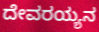
ದೇವರಯ್ಯನ